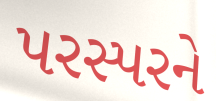
પરસ્પરને